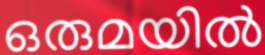
ഒരുമയിൽ